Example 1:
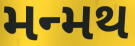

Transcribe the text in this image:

મન્મથ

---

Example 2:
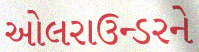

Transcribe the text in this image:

ઓલરાઉન્ડરને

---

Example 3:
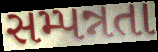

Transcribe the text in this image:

સમ્પન્નતા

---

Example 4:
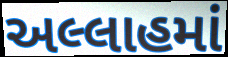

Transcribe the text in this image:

અલ્લાહમાં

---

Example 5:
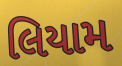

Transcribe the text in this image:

લિયામ